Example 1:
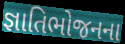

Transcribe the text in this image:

જ્ઞાતિભોજનના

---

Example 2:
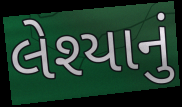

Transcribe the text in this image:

લેશ્યાનું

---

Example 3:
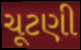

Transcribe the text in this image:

ચૂટણી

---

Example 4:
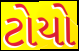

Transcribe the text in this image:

ટોયો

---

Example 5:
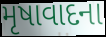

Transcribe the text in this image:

મૃષાવાદના